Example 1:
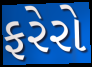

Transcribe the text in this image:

ફરેરો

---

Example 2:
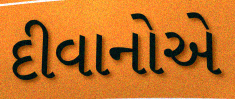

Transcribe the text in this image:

દીવાનોએ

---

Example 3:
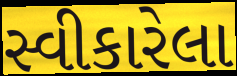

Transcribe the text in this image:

સ્વીકારેલા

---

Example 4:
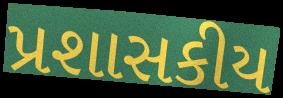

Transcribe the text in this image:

પ્રશાસકીય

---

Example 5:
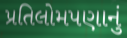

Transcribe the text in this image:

પ્રતિલોમપણાનું